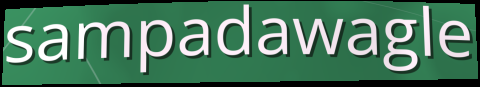
sampadawagle